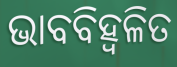
ଭାବବିହ୍ବଳିତ